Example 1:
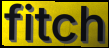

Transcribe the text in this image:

fitch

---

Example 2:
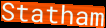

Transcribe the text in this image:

Statham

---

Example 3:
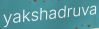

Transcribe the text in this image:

yakshadruva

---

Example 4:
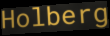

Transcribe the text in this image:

Holberg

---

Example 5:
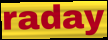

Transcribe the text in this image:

raday